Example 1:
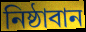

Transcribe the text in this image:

নিষ্ঠাবান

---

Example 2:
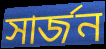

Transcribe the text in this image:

সার্জন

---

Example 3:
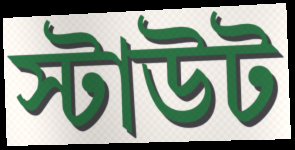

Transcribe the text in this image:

স্টাউট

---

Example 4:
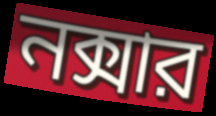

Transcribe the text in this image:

নক্সার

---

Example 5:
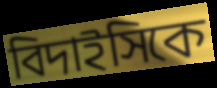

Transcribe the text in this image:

বিদাইসিকে